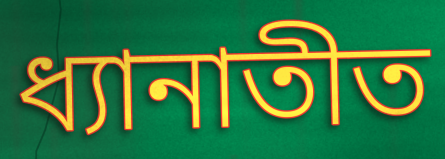
ধ্যানাতীত